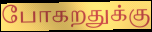
போகறதுக்கு